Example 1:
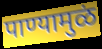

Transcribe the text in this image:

पाण्यामुळं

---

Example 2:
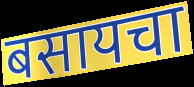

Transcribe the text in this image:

बसायचा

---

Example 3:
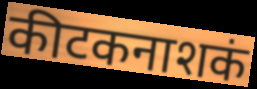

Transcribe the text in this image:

कीटकनाशकं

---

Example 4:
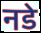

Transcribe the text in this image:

नडे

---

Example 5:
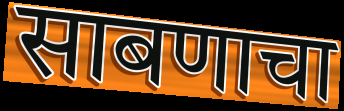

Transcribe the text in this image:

साबणाचा